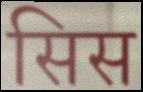
सिस